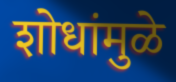
शोधांमुळे